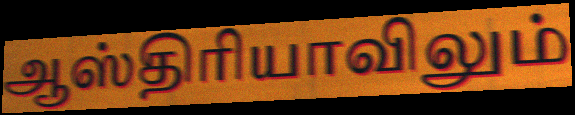
ஆஸ்திரியாவிலும்